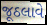
જૂઠલાવે